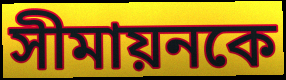
সীমায়নকে